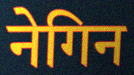
नेगिन